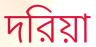
দরিয়া